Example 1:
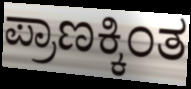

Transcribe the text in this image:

ಪ್ರಾಣಕ್ಕಿಂತ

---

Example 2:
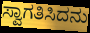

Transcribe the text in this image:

ಸ್ವಾಗತಿಸಿದನು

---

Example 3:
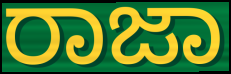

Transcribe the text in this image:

ರಾಜಾ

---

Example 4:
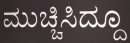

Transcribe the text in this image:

ಮುಚ್ಚಿಸಿದ್ದೂ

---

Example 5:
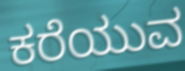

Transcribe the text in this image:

ಕರೆಯುವ